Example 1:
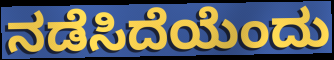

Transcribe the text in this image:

ನಡೆಸಿದೆಯೆಂದು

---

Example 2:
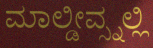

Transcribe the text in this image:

ಮಾಲ್ಡೀವ್ಸ್ನಲ್ಲಿ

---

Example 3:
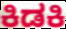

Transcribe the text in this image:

ಕಿಡಕಿ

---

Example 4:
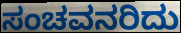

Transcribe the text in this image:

ಸಂಚವನರಿದು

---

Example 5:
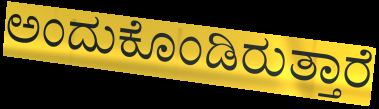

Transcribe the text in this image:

ಅಂದುಕೊಂಡಿರುತ್ತಾರೆ